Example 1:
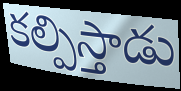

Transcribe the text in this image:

కల్పిస్తాడు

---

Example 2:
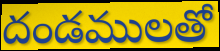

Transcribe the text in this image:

దండములతో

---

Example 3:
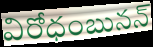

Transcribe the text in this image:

విరోధంబునన్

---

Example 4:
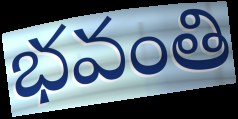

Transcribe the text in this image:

భవంతి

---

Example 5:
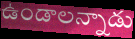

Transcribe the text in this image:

ఉండాలన్నాడు